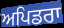
ਅਪਿਡਰਾ